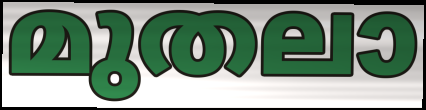
മുതലാ